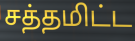
சத்தமிட்ட